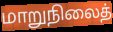
மாறுநிலைத்